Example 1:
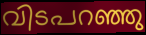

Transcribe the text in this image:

വിടപറഞ്ഞു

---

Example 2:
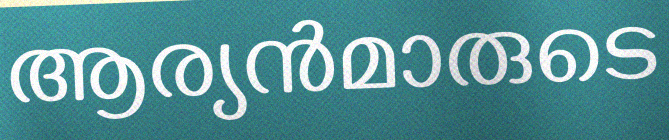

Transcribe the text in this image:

ആര്യൻമാരുടെ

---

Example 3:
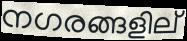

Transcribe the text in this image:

നഗരങ്ങളില്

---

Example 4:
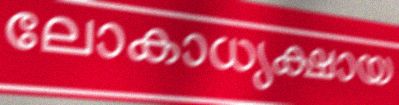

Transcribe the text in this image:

ലോകാധ്യക്ഷായ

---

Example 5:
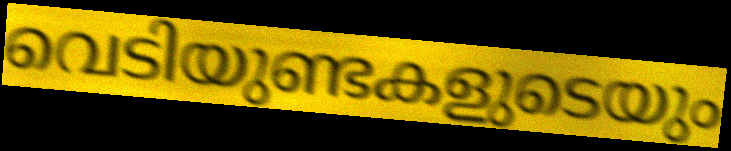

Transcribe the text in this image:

വെടിയുണ്ടകളുടെയും